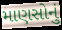
માણસોનું